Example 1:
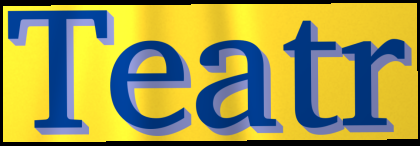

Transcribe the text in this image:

Teatr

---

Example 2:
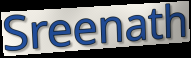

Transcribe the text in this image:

Sreenath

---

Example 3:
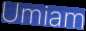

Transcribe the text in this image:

Umiam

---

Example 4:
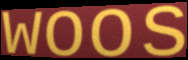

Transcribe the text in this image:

woos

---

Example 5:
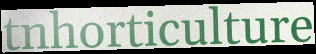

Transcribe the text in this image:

tnhorticulture